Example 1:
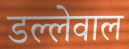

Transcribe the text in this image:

डल्लेवाल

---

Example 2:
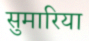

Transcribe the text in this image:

सुमारिया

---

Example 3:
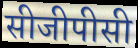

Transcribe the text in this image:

सीजीपीसी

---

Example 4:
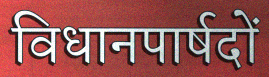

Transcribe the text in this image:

विधानपार्षदों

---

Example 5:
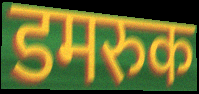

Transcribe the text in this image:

डमरुक